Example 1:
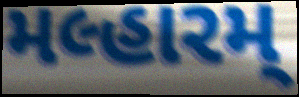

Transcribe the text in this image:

મલ્હારમ્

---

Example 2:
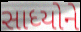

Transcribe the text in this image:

સાધ્યોને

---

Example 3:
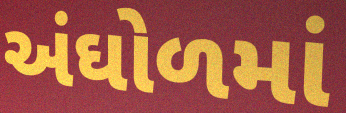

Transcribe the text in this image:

અંઘોળમાં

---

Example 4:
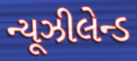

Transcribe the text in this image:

ન્યૂઝીલેન્ડ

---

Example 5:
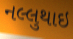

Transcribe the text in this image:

નલ્લુથાઇ